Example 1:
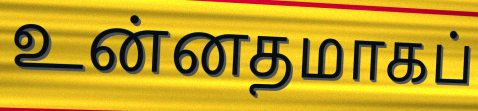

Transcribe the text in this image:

உன்னதமாகப்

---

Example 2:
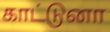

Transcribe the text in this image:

காட்டுனா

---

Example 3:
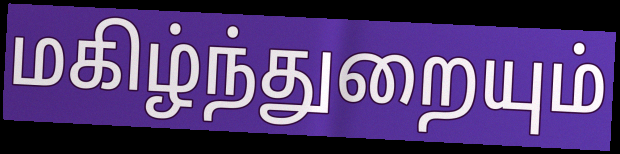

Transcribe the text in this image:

மகிழ்ந்துறையும்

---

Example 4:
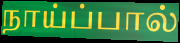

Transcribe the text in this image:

நாய்ப்பால்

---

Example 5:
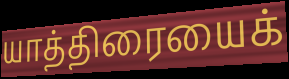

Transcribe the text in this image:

யாத்திரையைக்